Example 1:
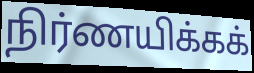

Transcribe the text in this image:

நிர்ணயிக்கக்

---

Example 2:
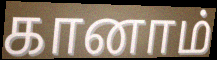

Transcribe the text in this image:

கானாம்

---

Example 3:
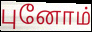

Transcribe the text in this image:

புனோம்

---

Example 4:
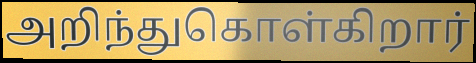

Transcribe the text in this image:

அறிந்துகொள்கிறார்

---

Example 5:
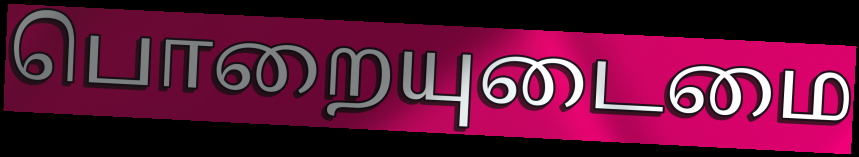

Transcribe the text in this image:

பொறையுடைமை